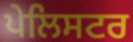
ਪੇਲਿਸਟਰ